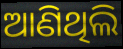
ଆଣିଥିଲି